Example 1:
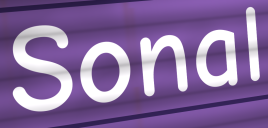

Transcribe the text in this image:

Sonal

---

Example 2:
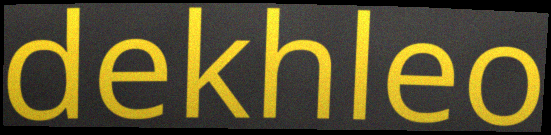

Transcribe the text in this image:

dekhleo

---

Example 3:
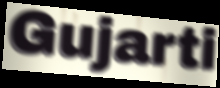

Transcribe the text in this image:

Gujarti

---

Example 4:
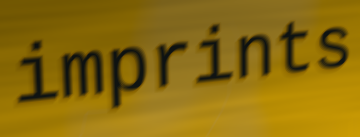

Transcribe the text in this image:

imprints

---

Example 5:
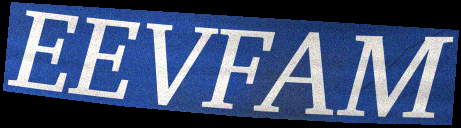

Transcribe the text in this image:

EEVFAM